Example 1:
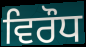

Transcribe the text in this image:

ਵਿਰੌਧ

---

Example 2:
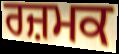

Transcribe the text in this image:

ਰਜ਼ਮਕ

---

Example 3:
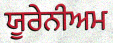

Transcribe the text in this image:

ਯੂਰੇਨੀਅਮ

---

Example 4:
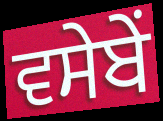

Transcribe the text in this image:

ਵਸੇਬੇਂ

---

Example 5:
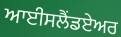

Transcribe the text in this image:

ਆਈਸਲੈਂਡਏਅਰ